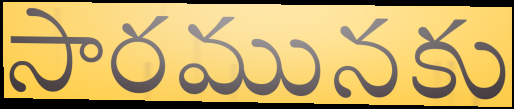
సారమునకు